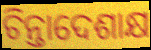
ଚିନ୍ତାଦେଶାକ୍ଷ